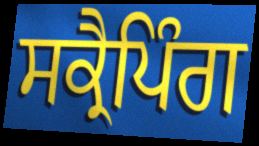
ਸਕ੍ਰੈਪਿੰਗ